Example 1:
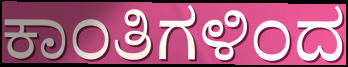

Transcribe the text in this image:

ಕಾಂತಿಗಳಿಂದ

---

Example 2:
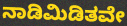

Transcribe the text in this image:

ನಾಡಿಮಿಡಿತವೇ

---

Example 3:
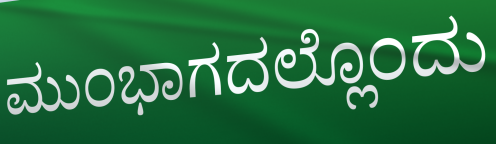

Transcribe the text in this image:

ಮುಂಭಾಗದಲ್ಲೊಂದು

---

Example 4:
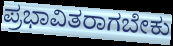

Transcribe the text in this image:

ಪ್ರಭಾವಿತರಾಗಬೇಕು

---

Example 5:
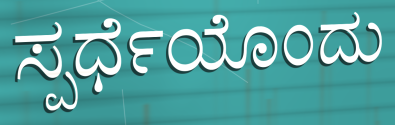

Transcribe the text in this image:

ಸ್ಪರ್ಧೆಯೊಂದು